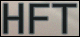
HFT